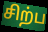
சிற்ப